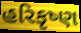
હરિકૃષ્ણ